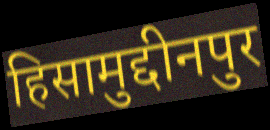
हिसामुद्दीनपुर